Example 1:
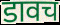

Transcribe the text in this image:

डावच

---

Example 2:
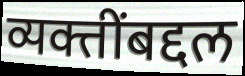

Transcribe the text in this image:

व्यक्तींबद्दल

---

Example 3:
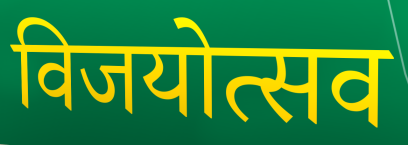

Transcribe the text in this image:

विजयोत्सव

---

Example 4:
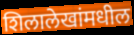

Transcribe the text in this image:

शिलालेखांमधील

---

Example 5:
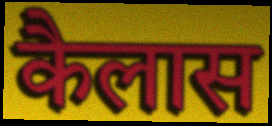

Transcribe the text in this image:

कैलास